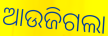
ଆଉଜିଗଲା